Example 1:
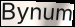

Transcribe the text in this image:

Bynum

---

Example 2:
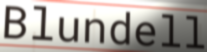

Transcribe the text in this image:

Blundell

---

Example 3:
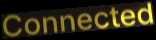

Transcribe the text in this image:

Connected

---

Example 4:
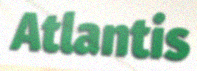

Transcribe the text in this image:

Atlantis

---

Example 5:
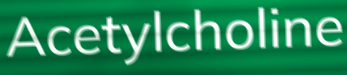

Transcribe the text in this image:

Acetylcholine